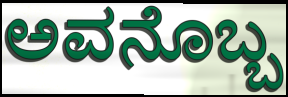
ಅವನೊಬ್ಬ